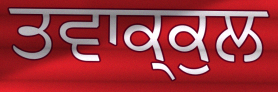
ਤਵਾਕ੍ਕੁਲ